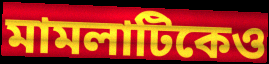
মামলাটিকেও